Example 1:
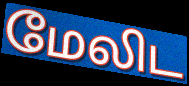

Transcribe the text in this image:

மேலிட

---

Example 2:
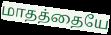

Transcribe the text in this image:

மாதத்தையே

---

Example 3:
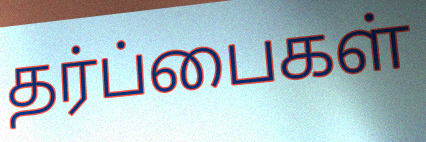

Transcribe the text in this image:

தர்ப்பைகள்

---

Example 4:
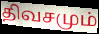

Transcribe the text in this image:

திவசமும்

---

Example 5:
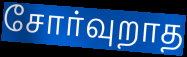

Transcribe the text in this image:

சோர்வுறாத